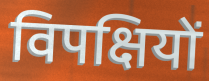
विपक्षियों